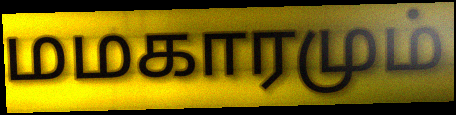
மமகாரமும்